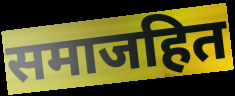
समाजहित